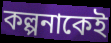
কল্পনাকেই